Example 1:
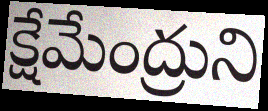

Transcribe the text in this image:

క్షేమేంద్రుని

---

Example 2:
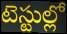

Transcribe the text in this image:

టెస్టుల్లో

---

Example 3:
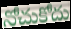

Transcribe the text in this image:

నోచుకోదు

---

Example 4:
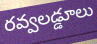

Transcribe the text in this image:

రవ్వలడ్డూలు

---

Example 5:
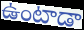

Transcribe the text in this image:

ఉంటాడా